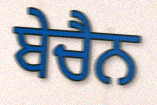
ਬੇਚੈਨ